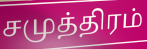
சமுத்திரம்